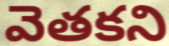
వెతకని